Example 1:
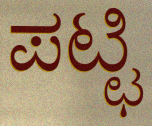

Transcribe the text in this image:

ಪಟ್ಟಿ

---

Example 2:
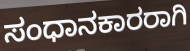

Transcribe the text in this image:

ಸಂಧಾನಕಾರರಾಗಿ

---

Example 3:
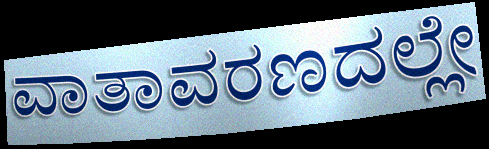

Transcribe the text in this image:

ವಾತಾವರಣದಲ್ಲೇ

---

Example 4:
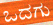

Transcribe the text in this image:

ಒದಗು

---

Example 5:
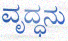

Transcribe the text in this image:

ವೃದ್ಧನು